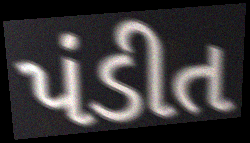
પંડીત